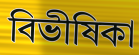
বিভীষিকা